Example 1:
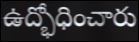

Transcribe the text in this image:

ఉద్భోధించారు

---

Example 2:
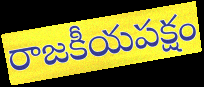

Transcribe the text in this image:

రాజకీయపక్షం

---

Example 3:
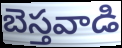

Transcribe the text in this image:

బెస్తవాడి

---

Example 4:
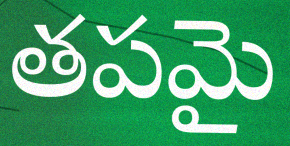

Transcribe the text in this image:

తపమై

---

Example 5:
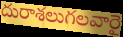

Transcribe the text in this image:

దురాశలుగలవారై